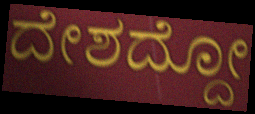
ದೇಶದ್ದೋ